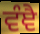
ਵੰਞੈ